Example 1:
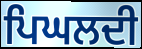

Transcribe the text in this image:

ਪਿਘਲਦੀ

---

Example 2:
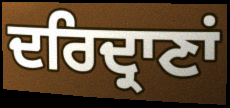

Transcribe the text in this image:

ਦਰਿਦ੍ਰਾਣਾਂ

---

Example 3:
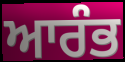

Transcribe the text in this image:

ਆਰੰਭ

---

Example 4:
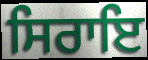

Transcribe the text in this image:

ਸਿਰਾਇ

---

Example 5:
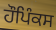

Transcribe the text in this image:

ਹੌਪਿੰਕਸ